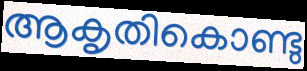
ആകൃതികൊണ്ടു